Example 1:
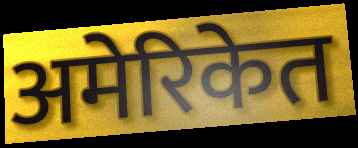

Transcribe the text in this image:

अमेरिकेत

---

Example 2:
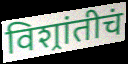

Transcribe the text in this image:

विश्रांतीचं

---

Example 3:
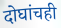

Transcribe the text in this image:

दोघांचही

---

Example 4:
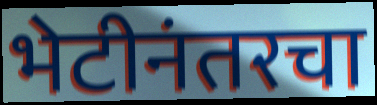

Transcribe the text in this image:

भेटीनंतरचा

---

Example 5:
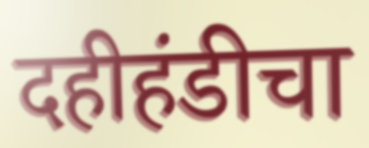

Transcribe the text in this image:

दहीहंडीचा